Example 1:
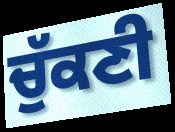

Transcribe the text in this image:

ਚੁੱਕਣੀ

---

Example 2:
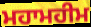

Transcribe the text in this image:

ਮਹਾਮਹੀਮ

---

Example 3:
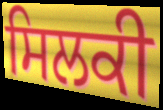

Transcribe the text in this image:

ਸਿਲਕੀ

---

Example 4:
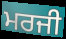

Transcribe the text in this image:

ਮਰਜੀ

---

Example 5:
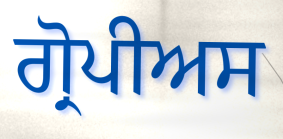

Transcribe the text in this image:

ਗ੍ਰੋਪੀਅਸ